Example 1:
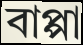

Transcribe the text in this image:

বাপ্পা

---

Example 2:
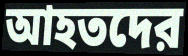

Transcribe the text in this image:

আহতদের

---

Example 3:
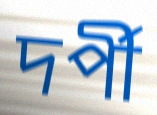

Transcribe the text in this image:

দর্পী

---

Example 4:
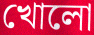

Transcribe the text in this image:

খোলো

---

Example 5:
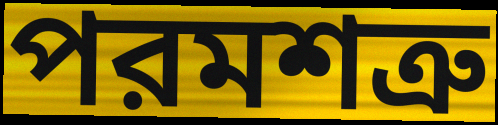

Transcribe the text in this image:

পরমশত্রু